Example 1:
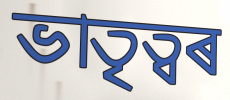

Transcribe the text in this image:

ভাতৃত্বৰ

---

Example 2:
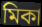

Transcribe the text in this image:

মিকা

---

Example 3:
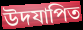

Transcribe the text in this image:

উদযাপিত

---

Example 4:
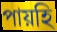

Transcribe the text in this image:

পায়হি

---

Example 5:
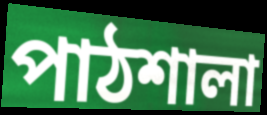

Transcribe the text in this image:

পাঠশালা